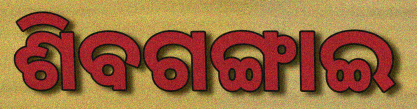
ଶିବଗଙ୍ଗାଇ